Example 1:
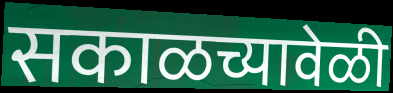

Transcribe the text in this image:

सकाळच्यावेळी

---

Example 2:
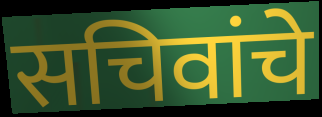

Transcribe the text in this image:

सचिवांचे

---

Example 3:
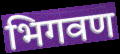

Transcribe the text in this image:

भिगवण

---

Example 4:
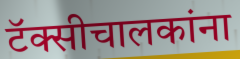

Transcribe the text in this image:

टॅक्सीचालकांना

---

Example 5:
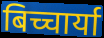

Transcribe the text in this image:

बिच्चार्या